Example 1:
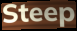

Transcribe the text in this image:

Steep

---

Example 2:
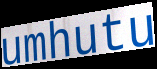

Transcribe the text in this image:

umhutu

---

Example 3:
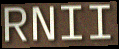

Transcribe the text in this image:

RNII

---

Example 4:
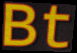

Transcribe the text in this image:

Bt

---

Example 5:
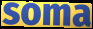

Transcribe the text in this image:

soma